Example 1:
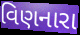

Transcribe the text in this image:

વિણનારા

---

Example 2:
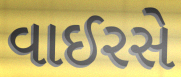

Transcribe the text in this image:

વાઈરસે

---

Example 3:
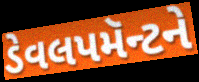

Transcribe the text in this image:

ડેવલપમૅન્ટને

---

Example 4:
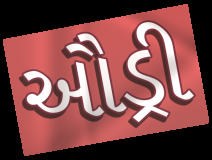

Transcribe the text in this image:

ઔડ્રી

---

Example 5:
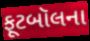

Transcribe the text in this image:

ફૂટબૉલના